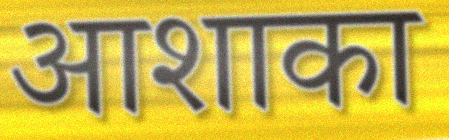
आशाका